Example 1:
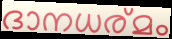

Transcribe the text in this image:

ദാനധര്മം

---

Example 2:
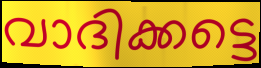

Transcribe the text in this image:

വാദിക്കട്ടെ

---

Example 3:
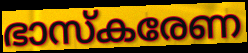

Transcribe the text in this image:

ഭാസ്കരേണ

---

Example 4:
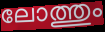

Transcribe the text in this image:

ലോത്തും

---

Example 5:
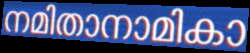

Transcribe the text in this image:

നമിതാനാമികാ